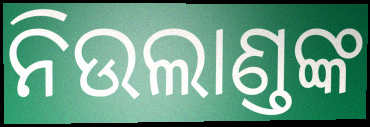
ନିଉଲାଣ୍ଡଙ୍କ